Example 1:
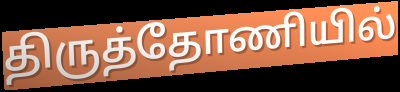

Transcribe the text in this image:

திருத்தோணியில்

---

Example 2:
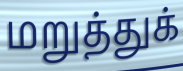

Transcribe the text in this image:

மறுத்துக்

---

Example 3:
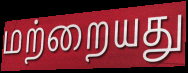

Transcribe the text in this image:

மற்றையது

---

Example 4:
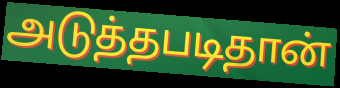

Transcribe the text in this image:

அடுத்தபடிதான்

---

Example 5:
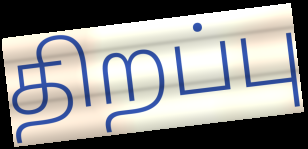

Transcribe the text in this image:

திறப்பு